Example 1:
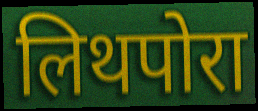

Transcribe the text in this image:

लिथपोरा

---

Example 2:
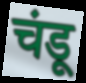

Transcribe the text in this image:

चंडू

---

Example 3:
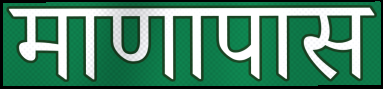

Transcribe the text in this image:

माणापास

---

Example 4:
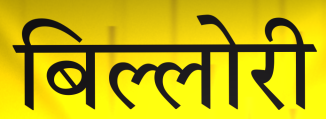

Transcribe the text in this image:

बिल्लोरी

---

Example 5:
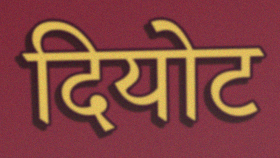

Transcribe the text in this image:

दियोट